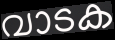
വാടക